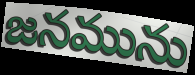
జనమును